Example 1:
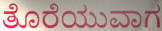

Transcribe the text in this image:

ತೊರೆಯುವಾಗ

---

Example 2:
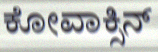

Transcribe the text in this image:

ಕೋವಾಕ್ಸಿನ್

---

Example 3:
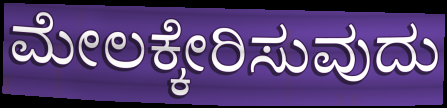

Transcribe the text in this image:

ಮೇಲಕ್ಕೇರಿಸುವುದು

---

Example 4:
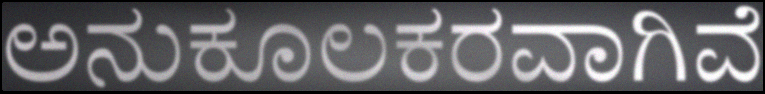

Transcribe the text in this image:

ಅನುಕೂಲಕರವಾಗಿವೆ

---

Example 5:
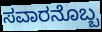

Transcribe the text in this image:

ಸವಾರನೊಬ್ಬ